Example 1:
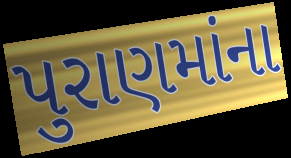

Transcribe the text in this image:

પુરાણમાંના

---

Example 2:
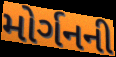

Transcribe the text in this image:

મોર્ગનની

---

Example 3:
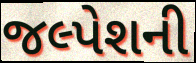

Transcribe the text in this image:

જલ્પેશની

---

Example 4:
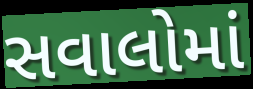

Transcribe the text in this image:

સવાલોમાં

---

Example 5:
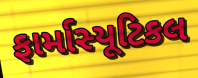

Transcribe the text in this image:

ફાર્માસ્યૂટિકલ